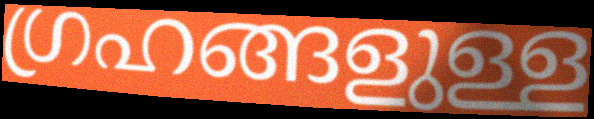
ഗ്രഹങ്ങളുള്ള